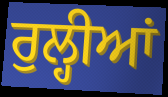
ਰੁਲ੍ਹੀਆਂ